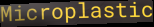
Microplastic